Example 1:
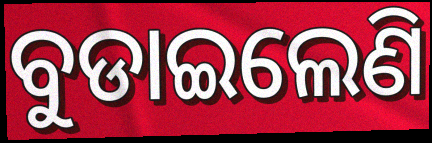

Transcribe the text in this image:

ବୁଡାଇଲେଣି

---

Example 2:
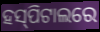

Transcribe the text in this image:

ହସ୍‍ପିଟାଲରେ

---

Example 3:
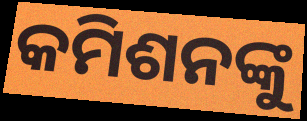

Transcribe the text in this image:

କମିଶନଙ୍କୁ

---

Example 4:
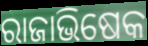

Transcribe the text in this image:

ରାଜାଭିଷେକ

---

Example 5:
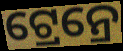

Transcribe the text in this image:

ଟ୍ରେନ୍ରେ